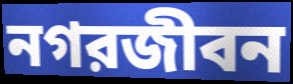
নগরজীবন